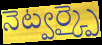
నెట్వర్క్పై